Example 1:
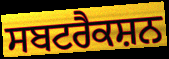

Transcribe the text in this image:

ਸਬਟਰੈਕਸ਼ਨ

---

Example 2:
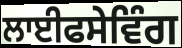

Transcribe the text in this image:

ਲਾਈਫਸੇਵਿੰਗ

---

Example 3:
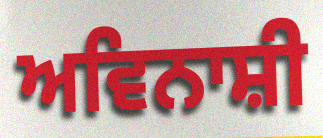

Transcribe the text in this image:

ਅਵਿਨਾਸ਼ੀ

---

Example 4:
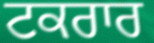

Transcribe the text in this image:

ਟਕਰਾਰ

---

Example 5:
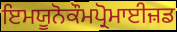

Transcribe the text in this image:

ਇਮਯੂਨੋਕੌਮਪ੍ਰੋਮਾਈਜ਼ਡ